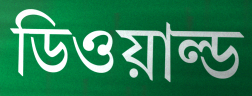
ডিওয়াল্ড